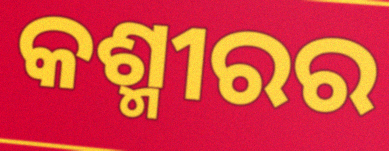
କଶ୍ମୀରର